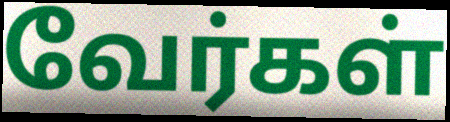
வேர்கள்